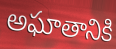
అఘాతానికి